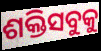
ଶକ୍ତିସବୁକୁ